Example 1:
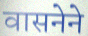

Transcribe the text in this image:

वासनेने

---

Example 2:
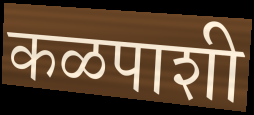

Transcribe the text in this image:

कळपाशी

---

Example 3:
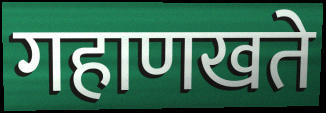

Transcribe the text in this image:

गहाणखते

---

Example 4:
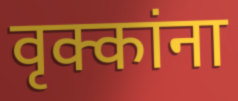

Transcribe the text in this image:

वृक्कांना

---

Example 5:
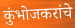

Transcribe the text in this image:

कुंभोजकरांचे